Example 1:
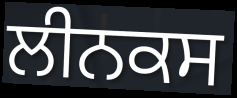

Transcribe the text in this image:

ਲੀਨਕਸ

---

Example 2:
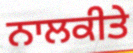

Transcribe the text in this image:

ਨਾਲਕੀਤੇ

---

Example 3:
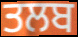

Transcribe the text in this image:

ਤਲਬ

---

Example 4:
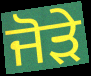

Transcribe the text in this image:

ਜੋੜੇ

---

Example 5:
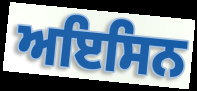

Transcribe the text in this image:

ਅਇਸਿਨ